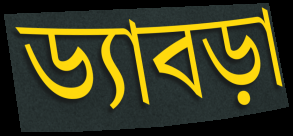
ড্যাবড়া